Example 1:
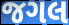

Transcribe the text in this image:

જગલ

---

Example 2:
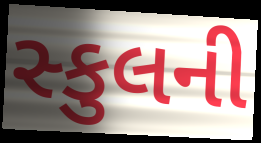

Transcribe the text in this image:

સ્કુલની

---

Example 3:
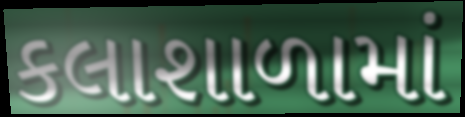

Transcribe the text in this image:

કલાશાળામાં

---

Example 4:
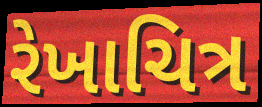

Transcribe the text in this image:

રેખાચિત્ર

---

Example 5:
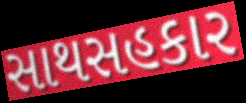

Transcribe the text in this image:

સાથસહકાર